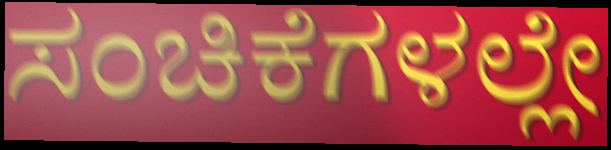
ಸಂಚಿಕೆಗಳಲ್ಲೇ